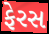
ફેરસ